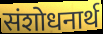
संशोधनार्थ